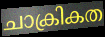
ചാക്രികത